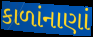
કાળાંનાણાં